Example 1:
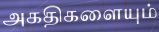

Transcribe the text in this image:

அகதிகளையும்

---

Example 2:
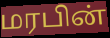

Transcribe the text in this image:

மரபின்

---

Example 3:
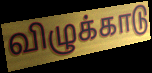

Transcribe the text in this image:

விழுக்காடு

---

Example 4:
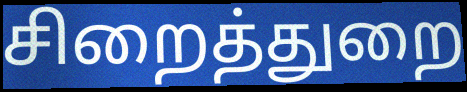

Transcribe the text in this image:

சிறைத்துறை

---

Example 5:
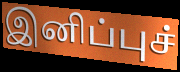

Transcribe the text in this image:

இனிப்புச்